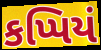
કપ્પિયં